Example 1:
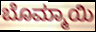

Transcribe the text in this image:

ಬೊಮ್ಮಾಯಿ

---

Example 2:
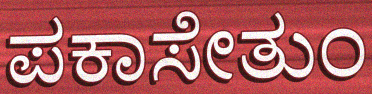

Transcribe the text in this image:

ಪಕಾಸೇತುಂ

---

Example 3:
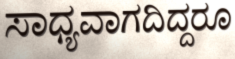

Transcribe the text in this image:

ಸಾಧ್ಯವಾಗದಿದ್ದರೂ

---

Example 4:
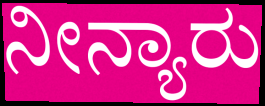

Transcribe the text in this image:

ನೀನ್ಯಾರು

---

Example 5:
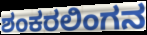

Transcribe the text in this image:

ಶಂಕರಲಿಂಗನ